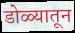
डोळ्यातून